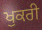
ਖੁਕਰੀ